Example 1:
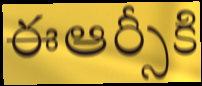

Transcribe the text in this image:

ఈఆర్సీకి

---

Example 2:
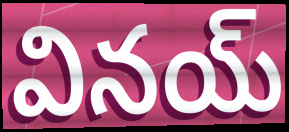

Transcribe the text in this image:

వినయ్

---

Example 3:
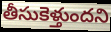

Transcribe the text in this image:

తీసుకెళ్తుందని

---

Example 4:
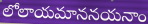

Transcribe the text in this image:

లోలాయమాననయనాం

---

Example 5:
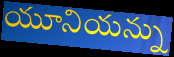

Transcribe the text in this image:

యూనియన్ను